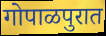
गोपाळपुरात